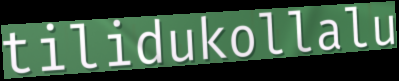
tilidukollalu